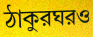
ঠাকুরঘরও